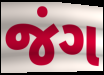
જંગ